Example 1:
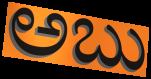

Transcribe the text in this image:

ಅಬು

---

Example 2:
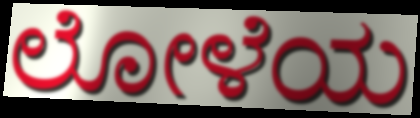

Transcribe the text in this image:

ಲೋಳೆಯ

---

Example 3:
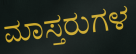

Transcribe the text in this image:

ಮಾಸ್ತರುಗಳ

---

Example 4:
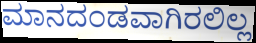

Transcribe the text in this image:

ಮಾನದಂಡವಾಗಿರಲಿಲ್ಲ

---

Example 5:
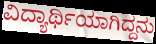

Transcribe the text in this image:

ವಿದ್ಯಾರ್ಥಿಯಾಗಿದ್ದನು